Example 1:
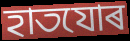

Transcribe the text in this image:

হাতযোৰ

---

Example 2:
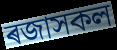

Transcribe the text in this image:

ৰজাসকল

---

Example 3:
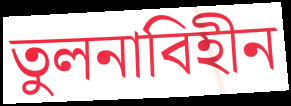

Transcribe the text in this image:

তুলনাবিহীন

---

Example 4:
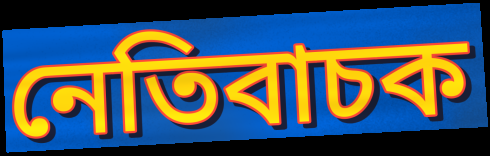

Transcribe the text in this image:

নেতিবাচক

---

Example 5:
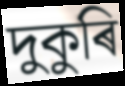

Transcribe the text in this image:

দুকুৰি